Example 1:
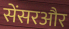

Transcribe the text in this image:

सेंसरऔर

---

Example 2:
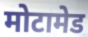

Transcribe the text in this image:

मोटामेड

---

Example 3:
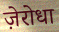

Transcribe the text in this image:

ज़ेरोधा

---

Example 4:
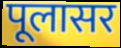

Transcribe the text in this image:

पूलासर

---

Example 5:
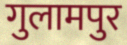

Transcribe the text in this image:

गुलामपुर